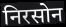
निरसोन